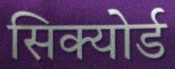
सिक्योर्ड